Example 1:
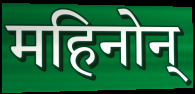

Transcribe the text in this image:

महिनोन्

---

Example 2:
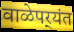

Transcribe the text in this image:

वाळेपर्यंत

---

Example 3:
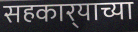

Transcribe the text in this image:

सहकार्‍याच्या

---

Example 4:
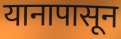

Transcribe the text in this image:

यानापासून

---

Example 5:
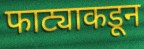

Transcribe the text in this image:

फाट्याकडून